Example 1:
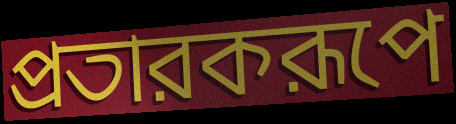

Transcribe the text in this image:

প্রতারকরূপে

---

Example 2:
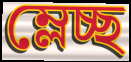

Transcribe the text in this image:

ম্লেচ্ছ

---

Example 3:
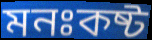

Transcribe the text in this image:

মনঃকষ্ট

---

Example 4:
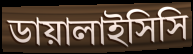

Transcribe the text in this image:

ডায়ালাইসিসি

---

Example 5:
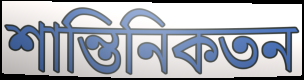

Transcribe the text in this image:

শান্তিনিকতন